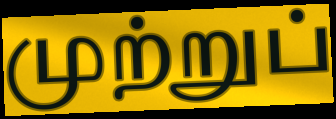
முற்றுப்